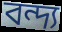
বন্দ্য